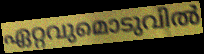
ഏറ്റവുമൊടുവിൽ